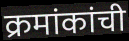
क्रमांकांची